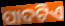
ପାଦଟିଏ